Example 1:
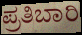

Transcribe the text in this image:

ಪ್ರತಿಬಾರಿ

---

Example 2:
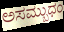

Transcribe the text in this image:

ಅಸಮ್ಬುಧಂ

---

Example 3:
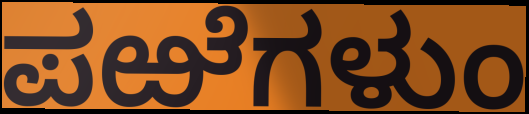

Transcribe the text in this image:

ಪಱೆಗಳುಂ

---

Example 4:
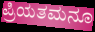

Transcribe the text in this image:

ಪ್ರಿಯತಮನೂ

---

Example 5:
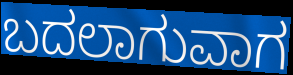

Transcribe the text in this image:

ಬದಲಾಗುವಾಗ